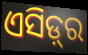
ଏସିଡ଼୍‌ର